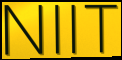
NIIT